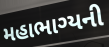
મહાભાગ્યની